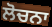
ਲੋਚਨਾ